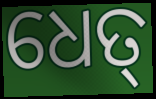
ଧେତ୍